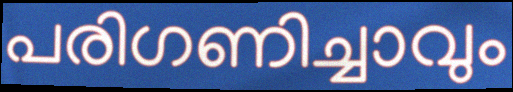
പരിഗണിച്ചാവും